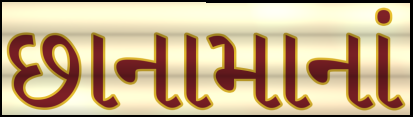
છાનામાનાં